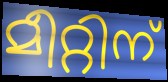
മീറ്റിന്